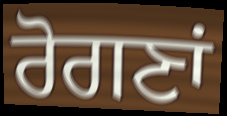
ਰੋਗਣਾਂ